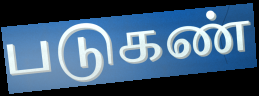
படுகண்